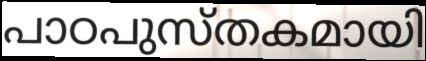
പാഠപുസ്തകമായി